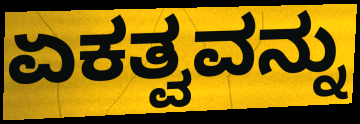
ಏಕತ್ವವನ್ನು